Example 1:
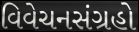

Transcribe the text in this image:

વિવેચનસંગ્રહો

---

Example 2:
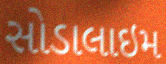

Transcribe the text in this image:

સોડાલાઇમ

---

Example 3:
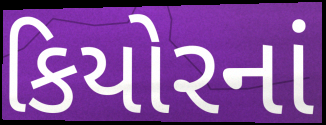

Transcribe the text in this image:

કિયોરનાં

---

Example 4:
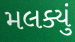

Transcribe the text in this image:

મલક્યું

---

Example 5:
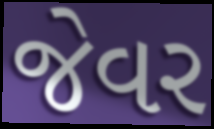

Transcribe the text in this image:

જેવર